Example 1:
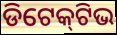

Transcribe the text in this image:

ଡିଟେକ୍‍ଟିଭ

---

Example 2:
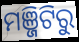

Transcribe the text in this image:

ମଞ୍ଜିଟିରୁ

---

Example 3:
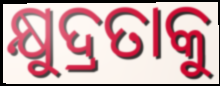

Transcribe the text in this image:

କ୍ଷୁଦ୍ରତାକୁ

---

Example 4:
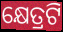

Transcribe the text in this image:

କ୍ଷେତ୍ରଟି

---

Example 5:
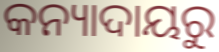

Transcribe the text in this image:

କନ୍ୟାଦାୟରୁ